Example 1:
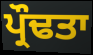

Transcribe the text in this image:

ਪ੍ਰੌਢਤਾ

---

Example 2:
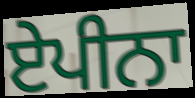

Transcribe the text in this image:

ਏਪੀਨਾ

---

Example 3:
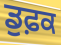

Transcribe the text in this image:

ਡੁਫ਼ਕ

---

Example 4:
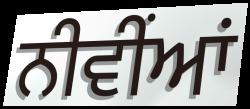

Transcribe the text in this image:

ਨੀਵੀਂਆਂ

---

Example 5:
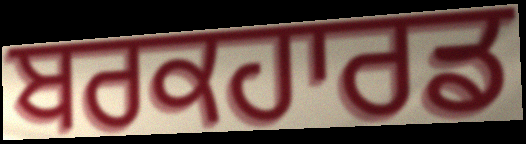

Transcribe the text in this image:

ਬਰਕਹਾਰਡ